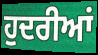
ਹੁਦਰੀਆਂ